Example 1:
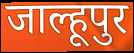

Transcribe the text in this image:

जाल्हूपुर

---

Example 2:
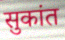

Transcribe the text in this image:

सुकांत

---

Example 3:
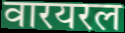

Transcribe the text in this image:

वारयरल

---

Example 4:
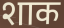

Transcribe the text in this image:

शाक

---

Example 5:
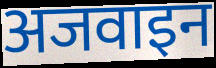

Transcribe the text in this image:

अजवाइन